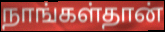
நாங்கள்தான்